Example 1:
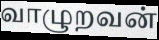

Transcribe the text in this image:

வாழுறவன்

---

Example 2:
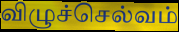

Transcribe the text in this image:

விழுச்செல்வம்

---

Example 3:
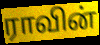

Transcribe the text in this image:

ராவின்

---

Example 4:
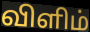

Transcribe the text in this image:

விளிம்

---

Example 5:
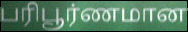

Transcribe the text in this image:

பரிபூர்ணமான